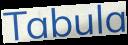
Tabula